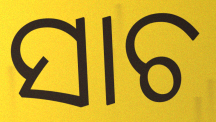
ସାଚ